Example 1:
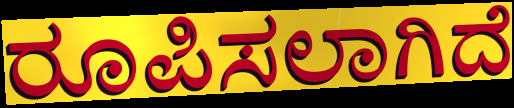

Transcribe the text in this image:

ರೂಪಿಸಲಾಗಿದೆ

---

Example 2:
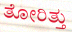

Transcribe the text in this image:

ತೋರಿತ್ತು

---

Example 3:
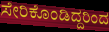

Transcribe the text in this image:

ಸೇರಿಕೊಂಡಿದ್ದರಿಂದ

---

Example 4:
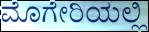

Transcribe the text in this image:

ಮೊಗೇರಿಯಲ್ಲಿ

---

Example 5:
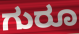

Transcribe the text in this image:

ಗುರೂ